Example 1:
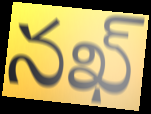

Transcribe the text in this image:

నఖ్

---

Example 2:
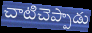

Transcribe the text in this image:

చాటిచెప్పాడు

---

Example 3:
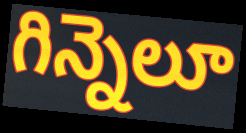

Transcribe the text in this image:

గిన్నెలూ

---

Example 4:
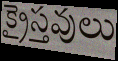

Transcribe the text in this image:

క్రైస్తవులు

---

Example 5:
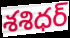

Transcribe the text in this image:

శశిధర్